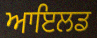
ਆਇਲਡ